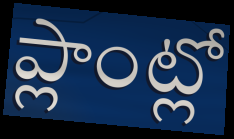
ప్లాంట్లో